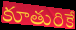
కూతురికే